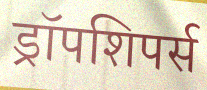
ड्रॉपशिपर्स